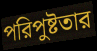
পরিপুষ্টতার